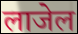
लाजेल